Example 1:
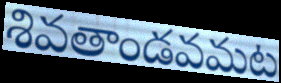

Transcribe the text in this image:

శివతాండవమట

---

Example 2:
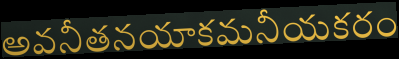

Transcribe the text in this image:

అవనీతనయాకమనీయకరం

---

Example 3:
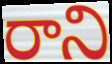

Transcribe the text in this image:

రాని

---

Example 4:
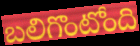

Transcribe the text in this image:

బలిగొంటోంది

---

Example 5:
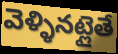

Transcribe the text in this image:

వెళ్ళినట్లైతే